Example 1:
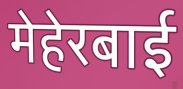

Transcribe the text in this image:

मेहेरबाई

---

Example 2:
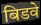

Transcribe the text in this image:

बिडवे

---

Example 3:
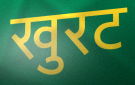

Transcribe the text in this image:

खुरट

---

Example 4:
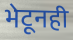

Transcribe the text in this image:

भेटूनही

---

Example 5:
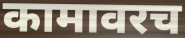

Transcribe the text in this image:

कामावरच